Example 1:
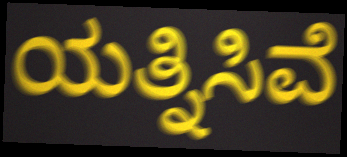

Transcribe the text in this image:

ಯತ್ನಿಸಿವೆ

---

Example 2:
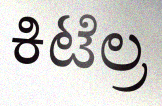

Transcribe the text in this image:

ಕಿಟೆಲ್ರ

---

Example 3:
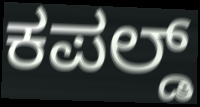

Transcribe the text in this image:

ಕಪಲ್ಡ್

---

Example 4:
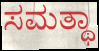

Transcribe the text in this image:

ಸಮತ್ಥಾ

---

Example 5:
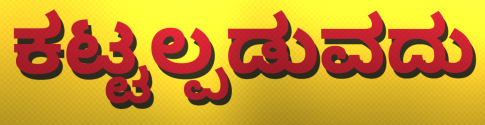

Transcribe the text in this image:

ಕಟ್ಟಲ್ಪಡುವದು